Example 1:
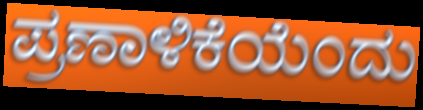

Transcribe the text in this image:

ಪ್ರಣಾಳಿಕೆಯೆಂದು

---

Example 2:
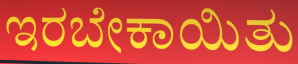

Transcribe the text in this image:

ಇರಬೇಕಾಯಿತು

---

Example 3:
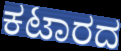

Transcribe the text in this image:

ಕಟಾರದ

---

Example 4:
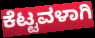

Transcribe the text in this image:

ಕೆಟ್ಟವಳಾಗಿ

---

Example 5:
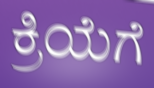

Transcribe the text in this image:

ಕ್ರಿಯೆಗೆ